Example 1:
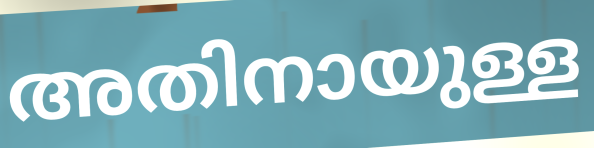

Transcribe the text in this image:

അതിനായുള്ള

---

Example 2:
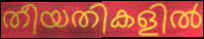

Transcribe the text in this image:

തീയതികളിൽ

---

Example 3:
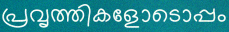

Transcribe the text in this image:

പ്രവൃത്തികളോടൊപ്പം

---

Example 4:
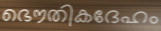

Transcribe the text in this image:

ഭൌതികദേഹം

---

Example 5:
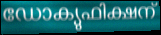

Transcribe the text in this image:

ഡോക്യുഫിക്ഷന്